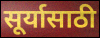
सूर्यासाठी